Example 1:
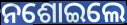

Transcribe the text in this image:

ନଶୋଇଲେ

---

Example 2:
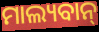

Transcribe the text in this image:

ମାଲ୍ୟବାନ୍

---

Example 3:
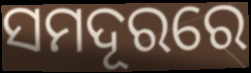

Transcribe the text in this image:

ସମଦୂରରେ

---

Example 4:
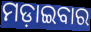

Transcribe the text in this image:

ମଡ଼ାଇବାର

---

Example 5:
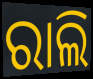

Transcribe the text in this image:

ରାଲି